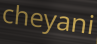
cheyani